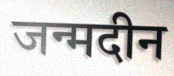
जन्मदीन